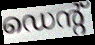
ഡെന്റ്